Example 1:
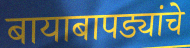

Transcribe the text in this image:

बायाबापड्यांचे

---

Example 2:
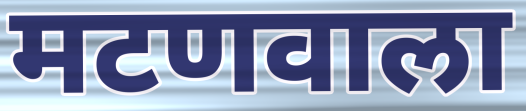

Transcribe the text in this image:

मटणवाला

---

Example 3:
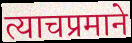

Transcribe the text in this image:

त्याचप्रमाने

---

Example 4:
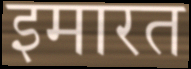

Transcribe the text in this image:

इमारत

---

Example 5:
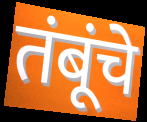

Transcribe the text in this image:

तंबूंचे